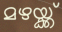
മഴയ്ക്ക്